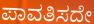
ಪಾವತಿಸದೇ